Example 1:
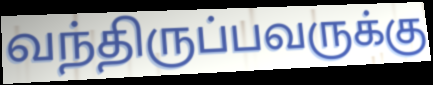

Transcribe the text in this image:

வந்திருப்பவருக்கு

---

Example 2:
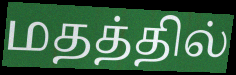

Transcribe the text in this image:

மதத்தில்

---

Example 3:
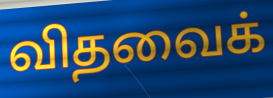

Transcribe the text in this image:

விதவைக்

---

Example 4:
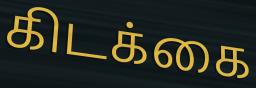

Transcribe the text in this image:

கிடக்கை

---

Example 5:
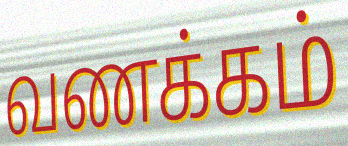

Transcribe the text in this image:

வணக்கம்